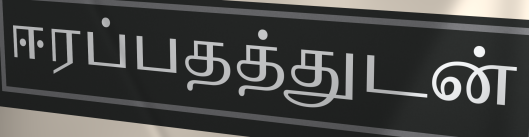
ஈரப்பதத்துடன்